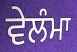
ਵੇਲੰਮਾ